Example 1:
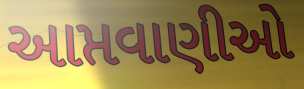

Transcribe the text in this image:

આપ્તવાણીઓ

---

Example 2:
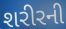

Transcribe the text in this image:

શરીરની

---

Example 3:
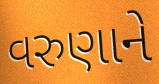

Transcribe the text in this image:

વરુણાને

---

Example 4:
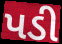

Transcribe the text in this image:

પડી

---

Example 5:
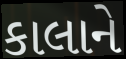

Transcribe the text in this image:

કાલાને